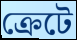
ক্রেটে